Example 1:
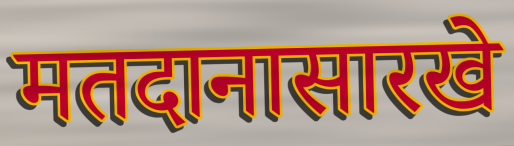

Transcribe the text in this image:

मतदानासारखे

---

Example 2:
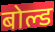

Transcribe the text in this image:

बोल्ड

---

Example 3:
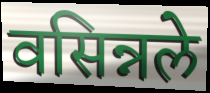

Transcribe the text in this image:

वसिन्नले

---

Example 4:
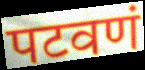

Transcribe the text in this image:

पटवणं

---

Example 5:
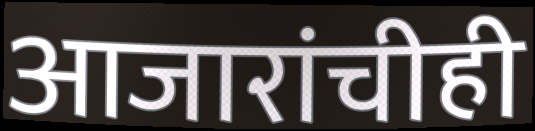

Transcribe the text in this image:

आजारांचीही